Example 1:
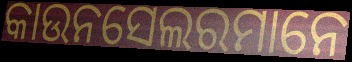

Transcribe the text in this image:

କାଉନସେଲରମାନେ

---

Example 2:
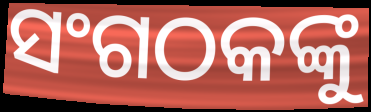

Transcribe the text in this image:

ସଂଗଠକଙ୍କୁ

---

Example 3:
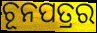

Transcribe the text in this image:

ଚୂନପତ୍ରର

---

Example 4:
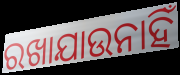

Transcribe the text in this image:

ରଖାଯାଉନାହିଁ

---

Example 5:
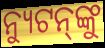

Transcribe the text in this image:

ନ୍ୟୁଟନ୍‌ଙ୍କୁ